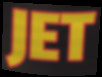
JET